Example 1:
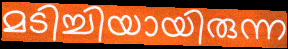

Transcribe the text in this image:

മടിച്ചിയായിരുന്ന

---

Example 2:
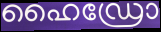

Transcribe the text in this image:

ഹൈഡ്രോ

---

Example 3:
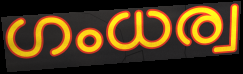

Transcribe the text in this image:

ഗംധര്വ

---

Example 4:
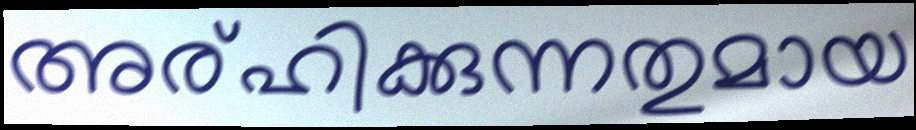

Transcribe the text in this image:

അര്ഹിക്കുന്നതുമായ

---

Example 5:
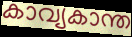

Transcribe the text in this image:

കാവ്യകാന്ത